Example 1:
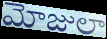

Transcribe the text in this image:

మోజులా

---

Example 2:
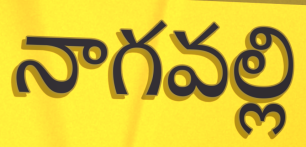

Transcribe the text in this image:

నాగవల్లి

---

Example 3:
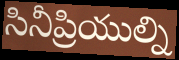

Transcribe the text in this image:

సినీప్రియుల్ని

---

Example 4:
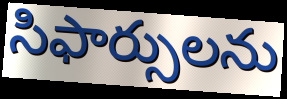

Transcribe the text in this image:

సిఫార్సులను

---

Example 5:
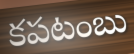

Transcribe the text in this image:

కపటంబు